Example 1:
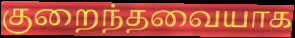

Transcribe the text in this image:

குறைந்தவையாக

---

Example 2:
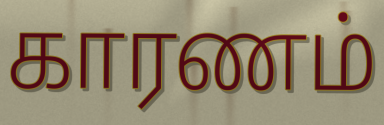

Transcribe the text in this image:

காரணம்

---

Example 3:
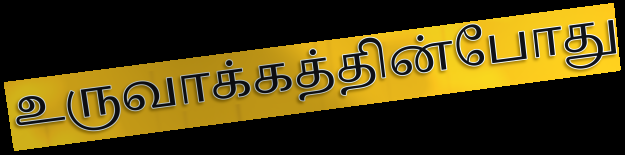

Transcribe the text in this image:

உருவாக்கத்தின்போது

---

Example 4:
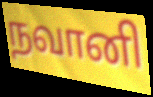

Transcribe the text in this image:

நவானி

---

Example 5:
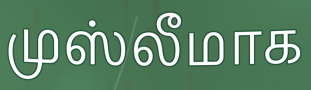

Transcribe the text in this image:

முஸ்லீமாக